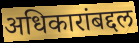
अधिकारांबद्दल